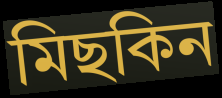
মিছকিন